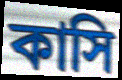
কাসি